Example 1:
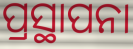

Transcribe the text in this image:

ପ୍ରସ୍ଥାପନା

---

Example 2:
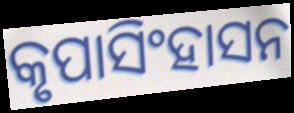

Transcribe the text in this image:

କୃପାସିଂହାସନ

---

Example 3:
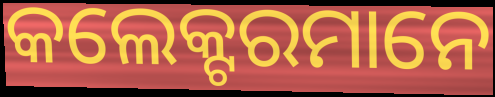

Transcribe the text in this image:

କଲେକ୍ଟରମାନେ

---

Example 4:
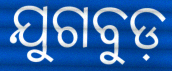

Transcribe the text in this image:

ଯୁଗବୁଡ଼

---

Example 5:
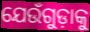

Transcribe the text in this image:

ଯେଉଁଗୁଡ଼ାକୁ